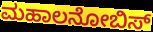
ಮಹಾಲನೋಬಿಸ್